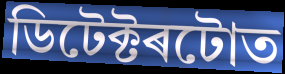
ডিটেক্টৰটোত